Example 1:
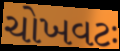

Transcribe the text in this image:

ચોખવટઃ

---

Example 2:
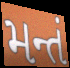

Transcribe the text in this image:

મન્તં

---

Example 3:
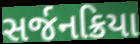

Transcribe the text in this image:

સર્જનક્રિયા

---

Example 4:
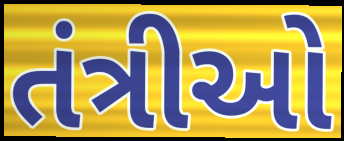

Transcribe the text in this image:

તંત્રીઓ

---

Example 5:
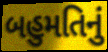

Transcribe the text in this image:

બહુમતિનું